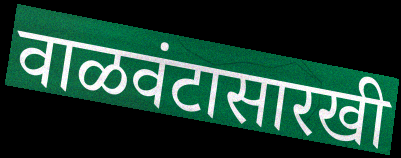
वाळवंटासारखी